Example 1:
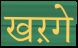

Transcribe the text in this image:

खऱगे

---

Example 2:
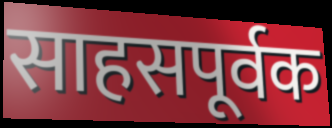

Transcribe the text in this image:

साहसपूर्वक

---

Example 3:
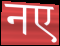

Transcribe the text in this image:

नए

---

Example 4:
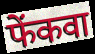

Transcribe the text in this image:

फेंकवा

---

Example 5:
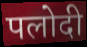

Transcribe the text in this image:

पलोदी